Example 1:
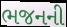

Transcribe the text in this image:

ભજનની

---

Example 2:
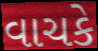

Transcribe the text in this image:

વાચકે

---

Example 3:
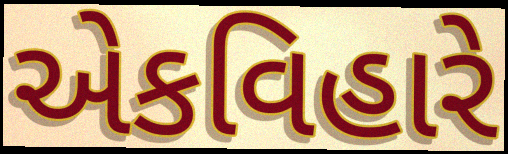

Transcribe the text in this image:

એકવિહારે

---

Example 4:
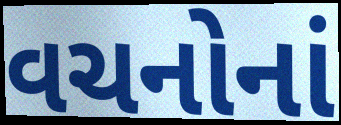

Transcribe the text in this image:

વચનોનાં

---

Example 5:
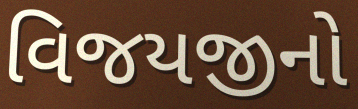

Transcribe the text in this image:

વિજયજીનો